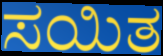
ಸಯಿತ